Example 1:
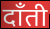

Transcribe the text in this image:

दाँती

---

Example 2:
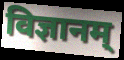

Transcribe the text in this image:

विज्ञानम्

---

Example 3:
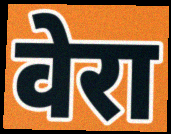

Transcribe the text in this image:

वेरा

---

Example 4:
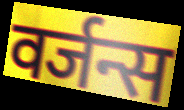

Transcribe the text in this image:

वर्जन्स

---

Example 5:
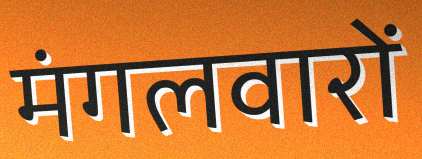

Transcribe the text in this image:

मंगलवारों